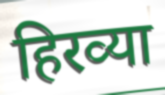
हिरव्‍या